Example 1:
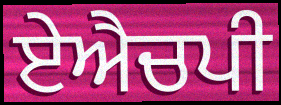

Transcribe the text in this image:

ਏਐਚਪੀ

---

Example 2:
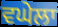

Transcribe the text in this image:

ਵਘੇਲਾ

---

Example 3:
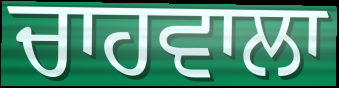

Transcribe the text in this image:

ਚਾਹਵਾਲਾ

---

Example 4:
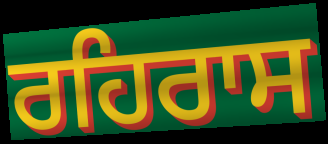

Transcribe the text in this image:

ਰਹਿਰਾਸ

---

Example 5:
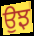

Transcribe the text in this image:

ਉਝ